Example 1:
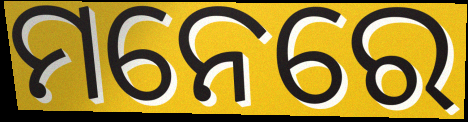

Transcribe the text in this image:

ମନେରେ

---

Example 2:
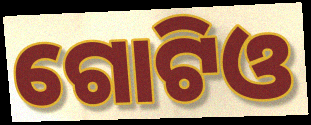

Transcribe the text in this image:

ଗୋଟିଓ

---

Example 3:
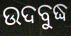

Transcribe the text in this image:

ଉଦବୁଦ୍ଧ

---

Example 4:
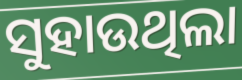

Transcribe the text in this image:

ସୁହାଉଥିଲା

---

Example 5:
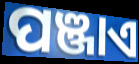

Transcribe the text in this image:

ପଞ୍ଜାଏ